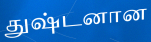
துஷ்டனான